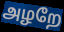
அழறே